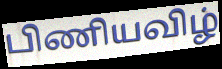
பிணியவிழ்